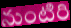
నుంటిరి